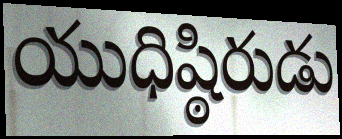
యుధిష్ఠిరుడు